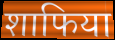
शाफिया